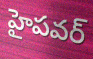
హైపవర్